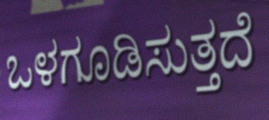
ಒಳಗೂಡಿಸುತ್ತದೆ